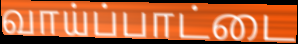
வாய்ப்பாட்டை